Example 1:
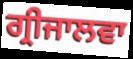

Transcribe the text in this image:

ਗ੍ਰੀਜਾਲਵਾ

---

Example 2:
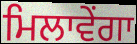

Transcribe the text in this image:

ਮਿਲਾਵੇਂਗਾ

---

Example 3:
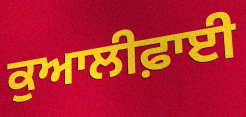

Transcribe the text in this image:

ਕੁਆਲੀਫ਼ਾਈ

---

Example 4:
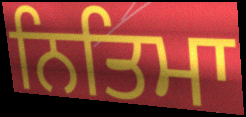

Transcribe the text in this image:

ਨਿਤਿਮਾ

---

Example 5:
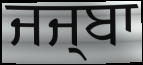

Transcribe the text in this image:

ਜਜ੍ਬਾ